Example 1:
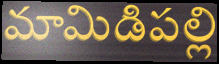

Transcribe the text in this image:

మామిడిపల్లి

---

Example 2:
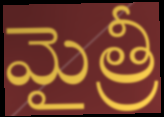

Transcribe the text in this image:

మైత్రీ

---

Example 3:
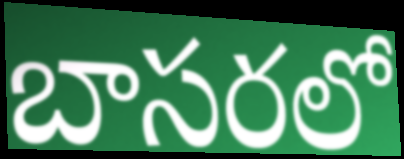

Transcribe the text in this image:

బాసరలో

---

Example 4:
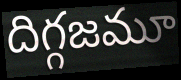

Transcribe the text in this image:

దిగ్గజమూ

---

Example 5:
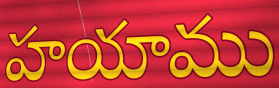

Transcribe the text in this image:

హయాము